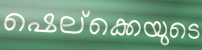
ഷെല്ക്കെയുടെ